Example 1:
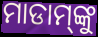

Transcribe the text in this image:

ମାଡାମ୍‌ଙ୍କୁ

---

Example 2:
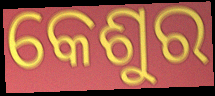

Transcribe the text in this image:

କେଶୁର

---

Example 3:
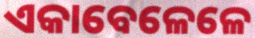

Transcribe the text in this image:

ଏକାବେଳେଳେ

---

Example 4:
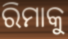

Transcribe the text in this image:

ରିମାକୁ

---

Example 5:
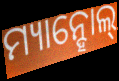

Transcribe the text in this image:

ମ୍ୟାନ୍ହୋଲ୍